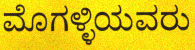
ಮೊಗಳ್ಳಿಯವರು